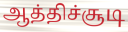
ஆத்திச்சூடி